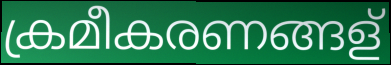
ക്രമീകരണങ്ങള്